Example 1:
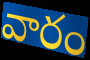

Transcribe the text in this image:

వారం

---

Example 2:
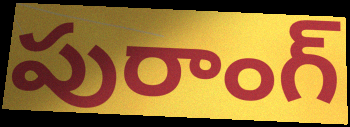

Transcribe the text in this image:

పురాంగ్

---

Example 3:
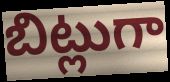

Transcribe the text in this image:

బిట్లుగా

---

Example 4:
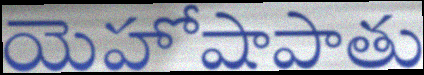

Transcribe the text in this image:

యెహోషాపాతు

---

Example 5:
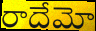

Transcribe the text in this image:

రాదేమో